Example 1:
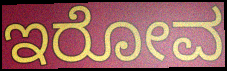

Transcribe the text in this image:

ಇರೋವ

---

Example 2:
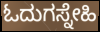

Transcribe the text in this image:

ಓದುಗಸ್ನೇಹಿ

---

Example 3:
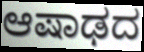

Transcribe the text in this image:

ಆಷಾಢದ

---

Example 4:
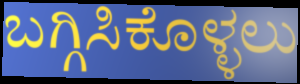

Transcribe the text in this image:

ಬಗ್ಗಿಸಿಕೊಳ್ಳಲು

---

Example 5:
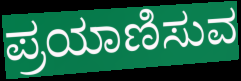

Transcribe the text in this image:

ಪ್ರಯಾಣಿಸುವ